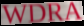
WDRA